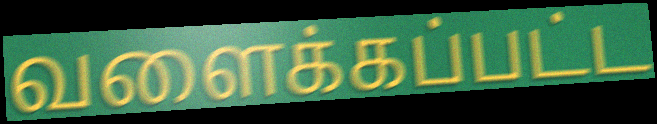
வளைக்கப்பட்ட